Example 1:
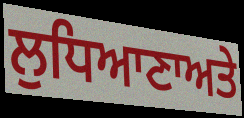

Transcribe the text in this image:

ਲੁਧਿਆਣਾਅਤੇ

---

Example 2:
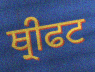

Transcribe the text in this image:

ਥ੍ਰੀਫਟ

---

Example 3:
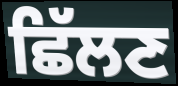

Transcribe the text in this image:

ਛਿੱਲਣ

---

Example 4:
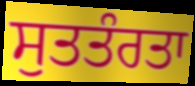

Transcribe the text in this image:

ਸੁਤਤੰਰਤਾ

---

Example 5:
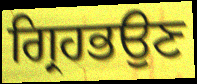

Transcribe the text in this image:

ਗ੍ਰਿਹਭਉਣ